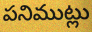
పనిముట్లు